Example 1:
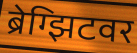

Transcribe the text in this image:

ब्रेग्झिटवर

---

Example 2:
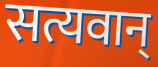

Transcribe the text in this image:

सत्यवान्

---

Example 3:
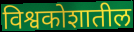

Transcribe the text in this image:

विश्वकोशातील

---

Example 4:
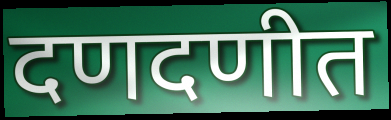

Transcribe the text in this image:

दणदणीत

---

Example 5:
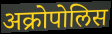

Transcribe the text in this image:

अक्रोपोलिस